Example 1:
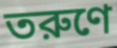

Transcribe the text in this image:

তরুণে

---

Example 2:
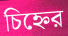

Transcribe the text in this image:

চিহ্নের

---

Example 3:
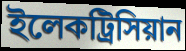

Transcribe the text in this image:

ইলেকট্রিসিয়ান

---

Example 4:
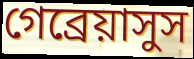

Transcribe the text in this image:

গেব্রেয়াসুস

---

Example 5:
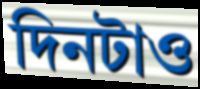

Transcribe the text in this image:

দিনটাও